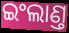
ଇଂଲାଣ୍ତ